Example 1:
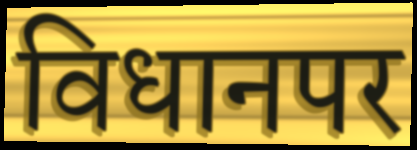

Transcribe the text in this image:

विधानपर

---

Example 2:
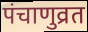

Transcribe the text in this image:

पंचाणुव्रत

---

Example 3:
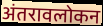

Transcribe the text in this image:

अंतरावलोकन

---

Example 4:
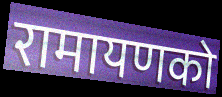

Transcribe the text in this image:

रामायणको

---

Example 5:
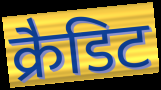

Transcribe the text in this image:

क्रैडिट